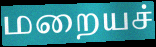
மறையச்